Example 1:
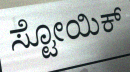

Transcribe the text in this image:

ಸ್ಟೋಯಿಕ್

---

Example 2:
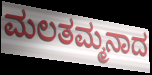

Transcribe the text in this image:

ಮಲತಮ್ಮನಾದ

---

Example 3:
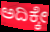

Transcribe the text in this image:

ಅದಿಕ್ಕೇ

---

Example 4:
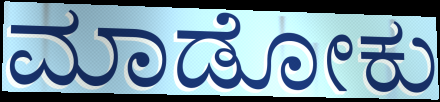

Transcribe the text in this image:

ಮಾಡೋಕು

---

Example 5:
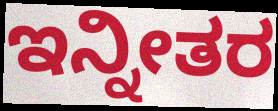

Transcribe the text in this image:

ಇನ್ನೀತರ